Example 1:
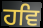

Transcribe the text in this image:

ਹਵਿ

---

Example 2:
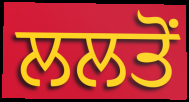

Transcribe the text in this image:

ਲਲਤੋਂ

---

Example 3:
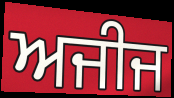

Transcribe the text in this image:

ਅਜੀਜ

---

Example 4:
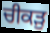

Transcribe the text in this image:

ਚੀਕੜੁ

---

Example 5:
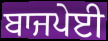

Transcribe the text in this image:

ਬਾਜਪੇਈ